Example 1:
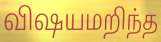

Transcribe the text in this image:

விஷயமறிந்த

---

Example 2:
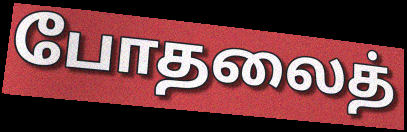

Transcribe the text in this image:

போதலைத்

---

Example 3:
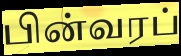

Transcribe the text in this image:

பின்வரப்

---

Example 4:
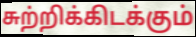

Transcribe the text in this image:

சுற்றிக்கிடக்கும்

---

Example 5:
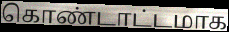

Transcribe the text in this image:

கொண்டாட்டமாக